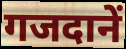
गजदानें